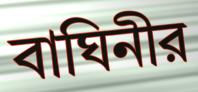
বাঘিনীর